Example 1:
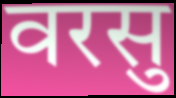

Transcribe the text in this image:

वरसु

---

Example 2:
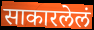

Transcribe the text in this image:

साकारलेलं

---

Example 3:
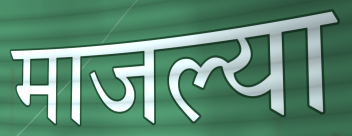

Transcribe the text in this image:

माजल्या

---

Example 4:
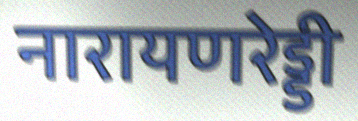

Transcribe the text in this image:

नारायणरेड्डी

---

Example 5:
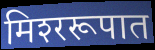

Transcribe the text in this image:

मिश्ररूपात